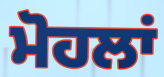
ਮੋਹਲਾਂ